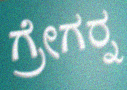
ಗ್ರೇಗರ್‍ನ